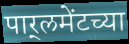
पार्लमेंटच्या